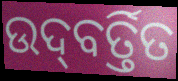
ଉଦ୍‌ବର୍ତ୍ତିତ